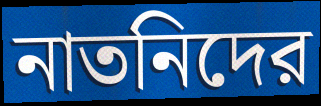
নাতনিদের